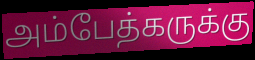
அம்பேத்கருக்கு